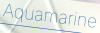
Aquamarine